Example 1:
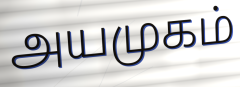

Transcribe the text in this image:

அயமுகம்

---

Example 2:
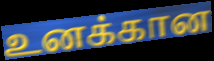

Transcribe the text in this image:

உனக்கான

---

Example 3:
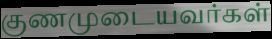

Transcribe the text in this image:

குணமுடையவர்கள்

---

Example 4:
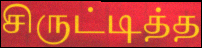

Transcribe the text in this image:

சிருட்டித்த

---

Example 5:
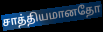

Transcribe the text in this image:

சாத்தியமானதோ